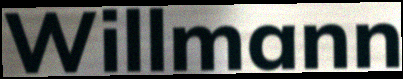
Willmann